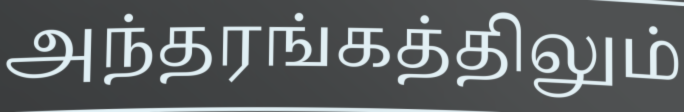
அந்தரங்கத்திலும்